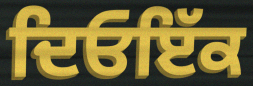
ਦਿਓਇੱਕ